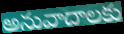
అనువాదాలకు